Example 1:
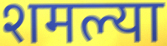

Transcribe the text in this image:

शमल्या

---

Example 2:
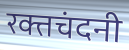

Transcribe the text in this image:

रक्तचंदनी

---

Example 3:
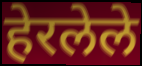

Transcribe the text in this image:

हेरलेले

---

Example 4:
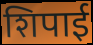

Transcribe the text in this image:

शिपाई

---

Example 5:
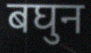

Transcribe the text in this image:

बघुन